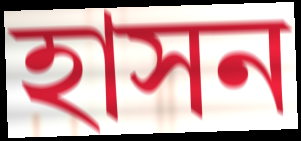
হাসন